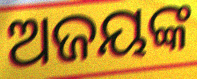
ଅଜୟଙ୍କ